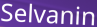
Selvanin